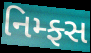
નિમ્ફ્સ